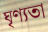
ঘৃণ্যতা